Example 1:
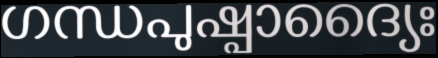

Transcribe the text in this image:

ഗന്ധപുഷ്പാദ്യൈഃ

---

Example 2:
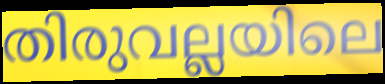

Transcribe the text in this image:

തിരുവല്ലയിലെ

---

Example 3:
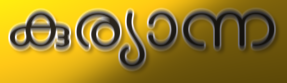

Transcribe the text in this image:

കുര്യാന്ന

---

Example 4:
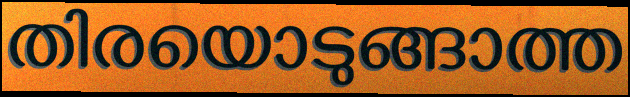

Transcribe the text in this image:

തിരയൊടുങ്ങാത്ത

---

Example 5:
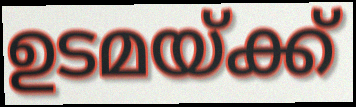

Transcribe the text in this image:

ഉടമയ്ക്ക്